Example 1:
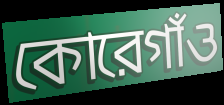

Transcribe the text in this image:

কোরেগাঁও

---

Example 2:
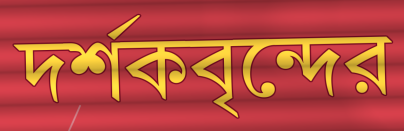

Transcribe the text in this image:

দর্শকবৃন্দের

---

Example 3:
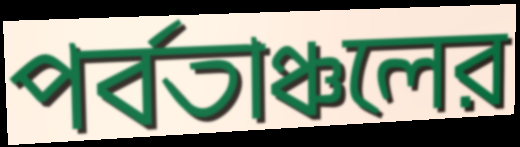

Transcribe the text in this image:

পর্বতাঞ্চলের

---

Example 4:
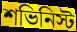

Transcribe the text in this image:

শভিনিস্ট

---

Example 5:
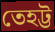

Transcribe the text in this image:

তেহট্ট